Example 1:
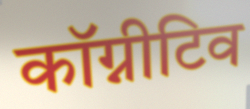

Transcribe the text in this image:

कॉग्नीटिव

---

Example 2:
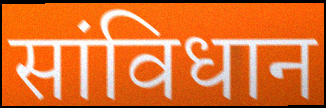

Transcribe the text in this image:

सांविधान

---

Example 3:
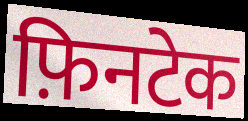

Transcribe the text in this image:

फ़िनटेक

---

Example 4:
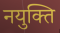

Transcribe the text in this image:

नयुक्ति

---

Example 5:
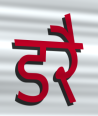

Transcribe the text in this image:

डरै